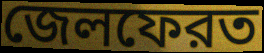
জেলফেরত